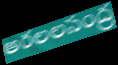
అరలలసంద్ర